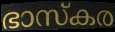
ഭാസ്കര